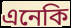
এনেকি